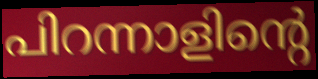
പിറന്നാളിന്റെ